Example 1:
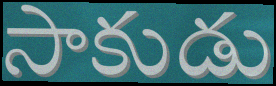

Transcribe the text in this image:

సాకుడు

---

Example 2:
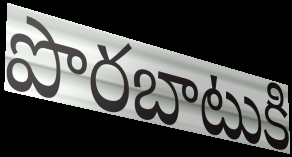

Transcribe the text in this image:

పొరబాటుకి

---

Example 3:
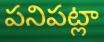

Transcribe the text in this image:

పనిపట్లా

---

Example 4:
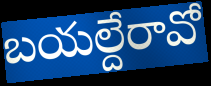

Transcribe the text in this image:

బయల్దేరావో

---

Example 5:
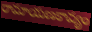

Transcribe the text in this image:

రామాయణకావ్యం